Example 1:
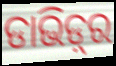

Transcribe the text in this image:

ଡାଭିଡ଼୍‍ର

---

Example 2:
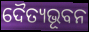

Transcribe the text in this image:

ଦୈତ୍ୟଭୂବନ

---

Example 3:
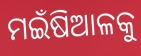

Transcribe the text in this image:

ମଇଁଷିଆଳକୁ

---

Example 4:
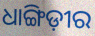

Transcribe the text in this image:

ଧାଙ୍ଗିଡ଼ୀର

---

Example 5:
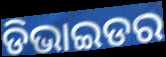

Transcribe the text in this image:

ଡିଭାଇଡର